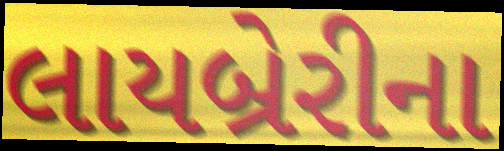
લાયબ્રેરીના